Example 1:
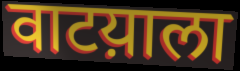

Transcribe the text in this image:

वाटय़ाला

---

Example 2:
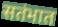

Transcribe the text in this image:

सतंभात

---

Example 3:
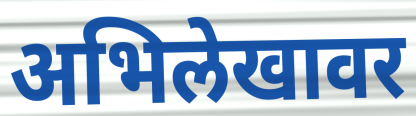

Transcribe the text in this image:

अभिलेखावर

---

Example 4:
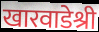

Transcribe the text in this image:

खारवाडेश्री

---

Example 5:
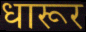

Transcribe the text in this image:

धारूर